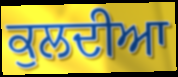
ਕੁਲਦੀਆ